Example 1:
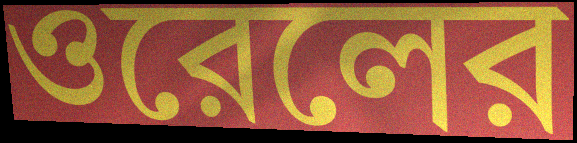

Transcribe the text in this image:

ওরেলের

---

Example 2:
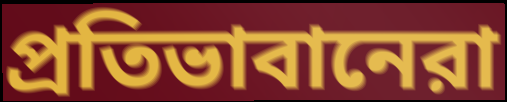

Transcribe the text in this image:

প্রতিভাবানেরা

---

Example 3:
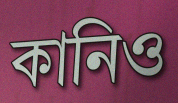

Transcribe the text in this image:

কানিও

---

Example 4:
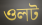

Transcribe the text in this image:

ওলট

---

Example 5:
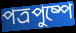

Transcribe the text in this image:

পত্রপুষ্পে